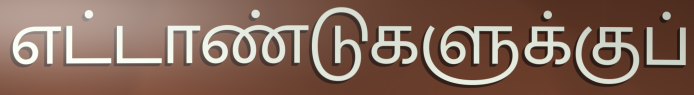
எட்டாண்டுகளுக்குப்